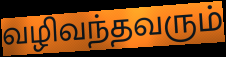
வழிவந்தவரும்